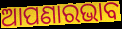
ଆପଣାରଭାବ